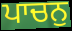
ਪਾਚਨੁ